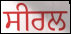
ਸੀਰਲ